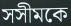
সসীমকে